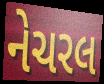
નેચરલ